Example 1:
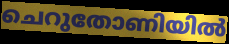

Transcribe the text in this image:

ചെറുതോണിയിൽ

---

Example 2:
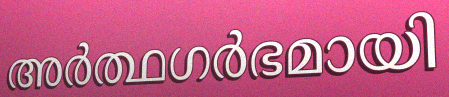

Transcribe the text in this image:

അർത്ഥഗർഭമായി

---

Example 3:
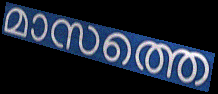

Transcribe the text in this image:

മാസത്തെ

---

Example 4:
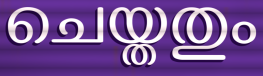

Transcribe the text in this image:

ചെയ്തതും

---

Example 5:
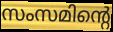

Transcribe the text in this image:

സംസമിന്റെ